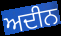
ਅਦੀਨ